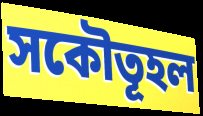
সকৌতূহল